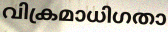
വിക്രമാധിഗതാ